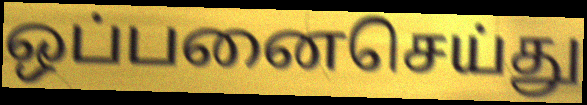
ஒப்பனைசெய்து